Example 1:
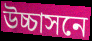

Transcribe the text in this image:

উচ্চাসনে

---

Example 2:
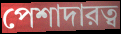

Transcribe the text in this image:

পেশাদারত্ব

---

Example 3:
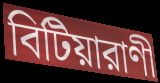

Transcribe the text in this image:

বিটিয়ারাণী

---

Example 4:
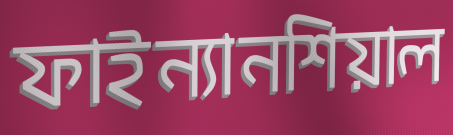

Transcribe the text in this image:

ফাইন্যানশিয়াল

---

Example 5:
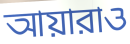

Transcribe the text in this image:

আয়ারাও